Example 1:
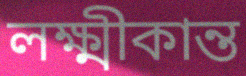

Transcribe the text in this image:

লক্ষ্মীকান্ত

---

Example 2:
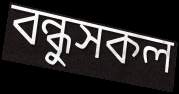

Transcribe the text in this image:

বন্ধুসকল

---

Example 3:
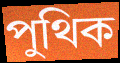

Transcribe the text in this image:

পুথিক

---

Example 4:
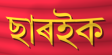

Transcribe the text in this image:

ছাৰইক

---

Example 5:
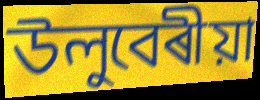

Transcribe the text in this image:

উলুবেৰীয়া